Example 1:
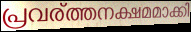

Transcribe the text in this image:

പ്രവര്ത്തനക്ഷമമാക്കി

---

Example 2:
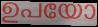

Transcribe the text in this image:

ഉപയോ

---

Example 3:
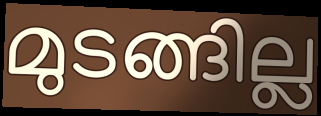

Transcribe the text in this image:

മുടങ്ങില്ല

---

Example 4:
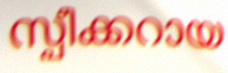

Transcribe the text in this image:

സ്പീക്കറായ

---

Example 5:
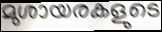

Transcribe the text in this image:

മുശായരകളുടെ